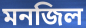
মনজিল